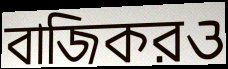
বাজিকরও